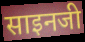
साइनजी